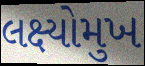
લક્ષ્યોમુખ